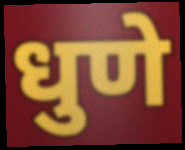
धुणे